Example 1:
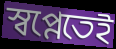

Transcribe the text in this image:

স্বপ্নেতেই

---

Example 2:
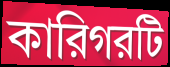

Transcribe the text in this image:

কারিগরটি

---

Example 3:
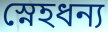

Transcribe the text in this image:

স্নেহধন্য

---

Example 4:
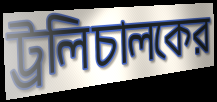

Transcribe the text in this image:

ট্রলিচালকের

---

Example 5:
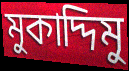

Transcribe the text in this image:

মুকাদ্দিমু